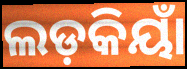
ଲଡ଼କିୟାଁ